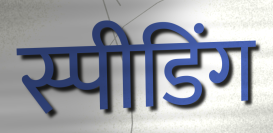
स्‍पीडिंग